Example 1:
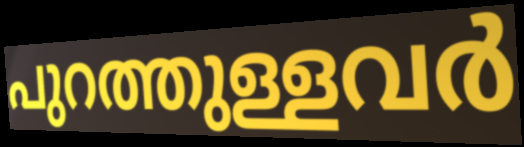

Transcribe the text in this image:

പുറത്തുള്ളവർ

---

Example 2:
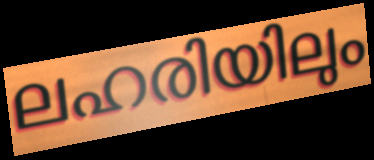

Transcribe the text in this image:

ലഹരിയിലും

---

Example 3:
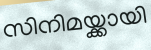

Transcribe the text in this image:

സിനിമയ്ക്കായി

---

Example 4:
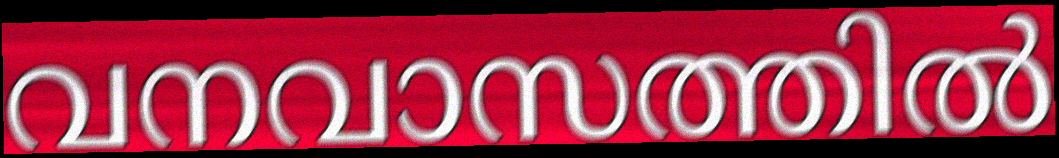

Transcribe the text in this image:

വനവാസത്തിൽ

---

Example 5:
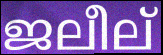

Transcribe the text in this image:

ജലീല്